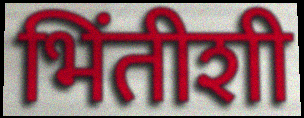
भिंतीशी